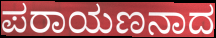
ಪರಾಯಣನಾದ